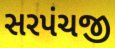
સરપંચજી